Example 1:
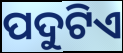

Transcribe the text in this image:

ପଦୁଟିଏ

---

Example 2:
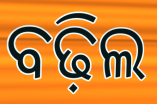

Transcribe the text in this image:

ବଢ଼ିଲ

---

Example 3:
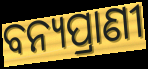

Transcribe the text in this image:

ବନ୍ୟପ୍ରାଣୀ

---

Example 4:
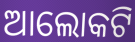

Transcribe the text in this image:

ଆଲୋକଟି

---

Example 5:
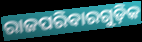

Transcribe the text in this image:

ରାଜପରିବାରଗୁଡ଼ିକ